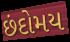
છંદોમય